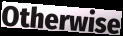
Otherwise